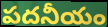
పదనీయం